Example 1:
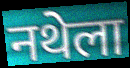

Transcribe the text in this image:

नथेला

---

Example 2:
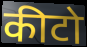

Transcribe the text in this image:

कीटो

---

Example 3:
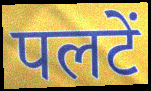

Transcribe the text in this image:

पलटें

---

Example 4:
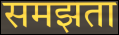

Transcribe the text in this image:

समझता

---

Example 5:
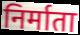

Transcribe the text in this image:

निर्माता